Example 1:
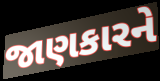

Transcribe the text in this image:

જાણકારને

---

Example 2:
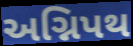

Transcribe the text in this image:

અગ્નિપથ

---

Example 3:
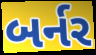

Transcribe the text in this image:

બર્નર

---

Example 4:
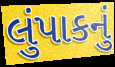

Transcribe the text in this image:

લુંપાકનું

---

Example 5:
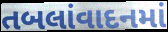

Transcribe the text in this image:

તબલાંવાદનમાં